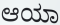
ಆಯಾ